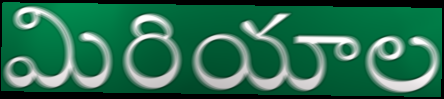
మిరియాల